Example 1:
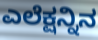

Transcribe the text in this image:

ಎಲೆಕ್ಷನ್ನಿನ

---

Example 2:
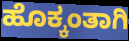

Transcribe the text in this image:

ಹೊಕ್ಕಂತಾಗಿ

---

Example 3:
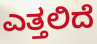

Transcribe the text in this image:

ಎತ್ತಲಿದೆ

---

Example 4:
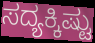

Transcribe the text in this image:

ಸದ್ಯಕ್ಕಿಷ್ಟು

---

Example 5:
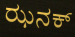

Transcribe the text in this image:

ಝನಕ್